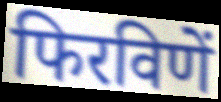
फिरविणें